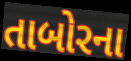
તાબોરના